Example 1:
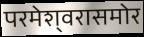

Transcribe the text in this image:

परमेश्वरासमोर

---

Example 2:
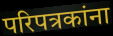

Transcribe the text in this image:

परिपत्रकांना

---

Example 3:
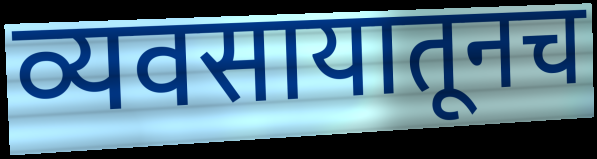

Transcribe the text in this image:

व्यवसायातूनच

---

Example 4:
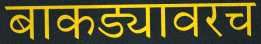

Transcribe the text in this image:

बाकड्यावरच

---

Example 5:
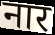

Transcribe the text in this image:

नार